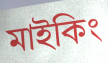
মাইকিং